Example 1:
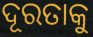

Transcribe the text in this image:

ଦୂରତାକୁ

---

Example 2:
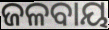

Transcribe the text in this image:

ଜଳବାୟ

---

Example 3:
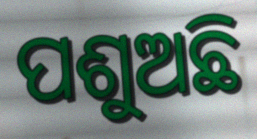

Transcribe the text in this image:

ପଶୁଅଛି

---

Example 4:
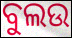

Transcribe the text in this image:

ବୁଲଉ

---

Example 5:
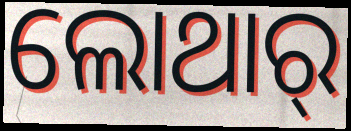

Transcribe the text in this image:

ଲୋଥାର୍